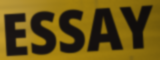
ESSAY